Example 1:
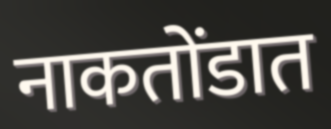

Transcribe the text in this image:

नाकतोंडात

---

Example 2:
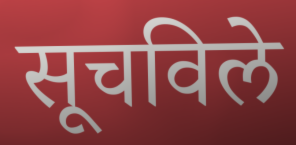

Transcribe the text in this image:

सूचविले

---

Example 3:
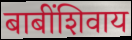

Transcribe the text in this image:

बाबींशिवाय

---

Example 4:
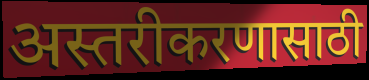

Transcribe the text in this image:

अस्तरीकरणासाठी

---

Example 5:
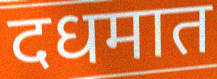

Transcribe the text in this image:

दधमात